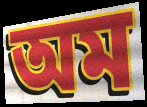
অম